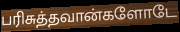
பரிசுத்தவான்களோடே